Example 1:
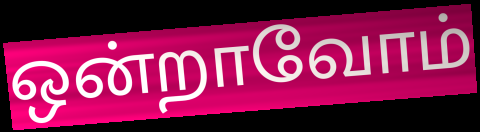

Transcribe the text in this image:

ஒன்றாவோம்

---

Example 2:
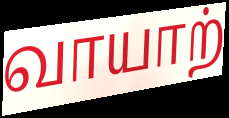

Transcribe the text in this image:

வாயாற்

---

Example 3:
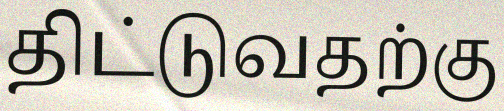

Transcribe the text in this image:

திட்டுவதற்கு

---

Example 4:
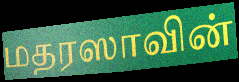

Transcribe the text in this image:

மதரஸாவின்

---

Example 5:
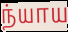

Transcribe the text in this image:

ந்யாய